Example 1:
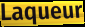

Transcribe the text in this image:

Laqueur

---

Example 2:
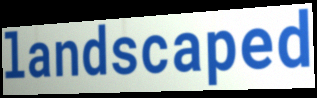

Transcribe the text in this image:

landscaped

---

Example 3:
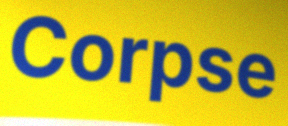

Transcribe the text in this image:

Corpse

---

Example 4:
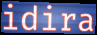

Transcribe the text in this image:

idira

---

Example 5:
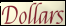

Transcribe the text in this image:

Dollars